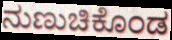
ನುಣುಚಿಕೊಂಡ